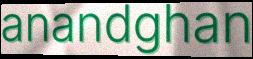
anandghan